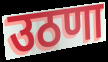
उठणा